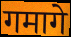
गमागे